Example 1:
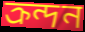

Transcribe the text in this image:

ক্রন্দন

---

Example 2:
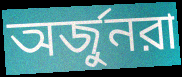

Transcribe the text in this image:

অর্জুনরা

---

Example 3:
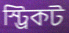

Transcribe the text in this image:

স্ট্রিকট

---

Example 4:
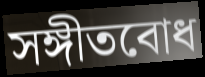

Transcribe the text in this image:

সঙ্গীতবোধ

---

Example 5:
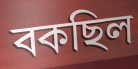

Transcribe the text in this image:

বকছিল